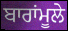
ਬਾਰਾਂਮੂਲੇ